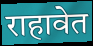
राहावेत